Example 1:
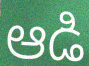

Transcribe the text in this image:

ఆడి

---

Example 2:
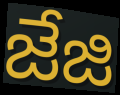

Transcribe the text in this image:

జేజి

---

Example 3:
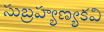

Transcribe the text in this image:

సుబ్రహ్యణ్యకవి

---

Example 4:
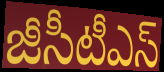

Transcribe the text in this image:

జీసీటీఎస్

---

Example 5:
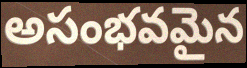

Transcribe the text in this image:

అసంభవమైన